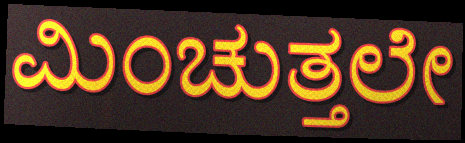
ಮಿಂಚುತ್ತಲೇ